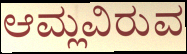
ಆಮ್ಲವಿರುವ